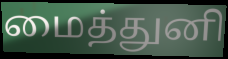
மைத்துனி